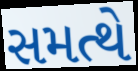
સમત્થે